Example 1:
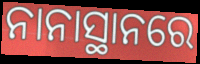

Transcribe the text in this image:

ନାନାସ୍ଥାନରେ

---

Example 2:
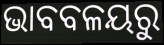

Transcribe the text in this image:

ଭାବବଳୟରୁ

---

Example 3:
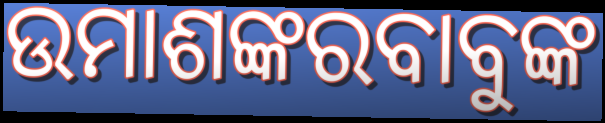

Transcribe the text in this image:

ଉମାଶଙ୍କରବାବୁଙ୍କ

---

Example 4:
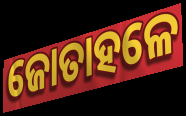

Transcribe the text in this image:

ଜୋତାହଳେ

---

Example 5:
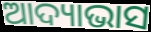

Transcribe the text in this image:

ଆଦ୍ୟାଭାସ